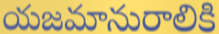
యజమానురాలికి